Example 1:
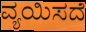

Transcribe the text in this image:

ವ್ಯಯಿಸದೆ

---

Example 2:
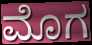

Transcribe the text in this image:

ಮೊಗ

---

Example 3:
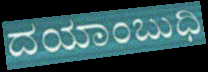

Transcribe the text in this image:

ದಯಾಂಬುಧಿ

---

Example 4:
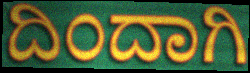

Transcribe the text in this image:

ದಿಂದಾಗಿ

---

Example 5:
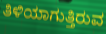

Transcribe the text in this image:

ತಿಳಿಯಾಗುತ್ತಿರುವ